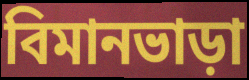
বিমানভাড়া